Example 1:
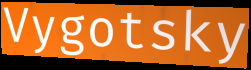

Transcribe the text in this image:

Vygotsky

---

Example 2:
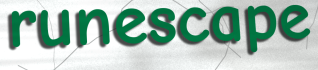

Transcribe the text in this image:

runescape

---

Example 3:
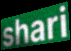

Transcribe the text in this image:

shari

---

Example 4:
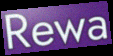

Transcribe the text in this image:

Rewa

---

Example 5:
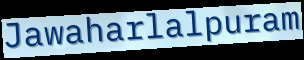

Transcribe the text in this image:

Jawaharlalpuram